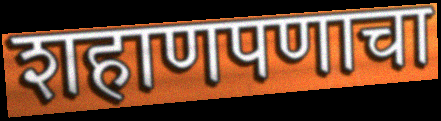
शहाणपणाचा